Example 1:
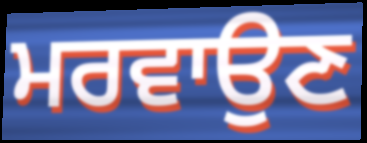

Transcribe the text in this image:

ਮਰਵਾਉਣ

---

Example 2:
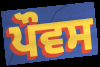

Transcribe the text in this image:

ਪੌਵਸ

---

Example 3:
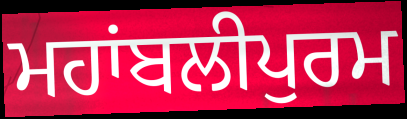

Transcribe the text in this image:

ਮਹਾਂਬਲੀਪੁਰਮ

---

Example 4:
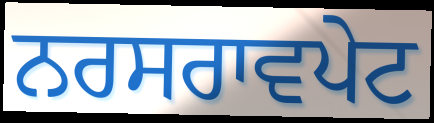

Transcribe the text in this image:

ਨਰਸਰਾਵਪੇਟ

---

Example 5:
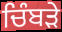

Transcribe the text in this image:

ਚਿੰਬਡ਼ੇ